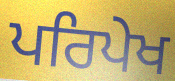
ਪਰਿਪੇਖ